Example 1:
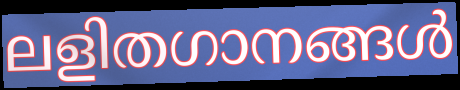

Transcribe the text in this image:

ലളിതഗാനങ്ങൾ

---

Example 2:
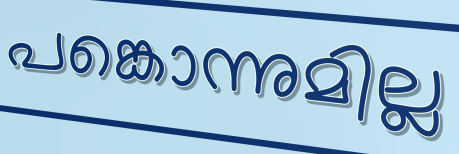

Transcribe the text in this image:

പങ്കൊന്നുമില്ല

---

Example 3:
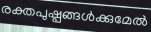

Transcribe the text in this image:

രക്തപുഷ്പങ്ങൾക്കുമേൽ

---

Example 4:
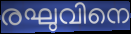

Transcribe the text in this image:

രഘുവിനെ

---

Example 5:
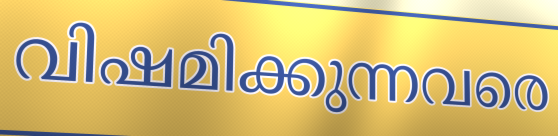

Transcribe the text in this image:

വിഷമിക്കുന്നവരെ